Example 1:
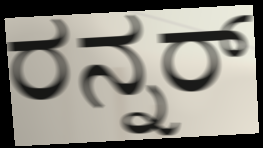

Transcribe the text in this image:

ರನ್ನರ್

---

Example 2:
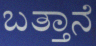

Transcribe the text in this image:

ಬತ್ತಾನೆ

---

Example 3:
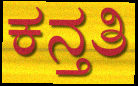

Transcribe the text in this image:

ಕನ್ತತಿ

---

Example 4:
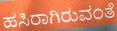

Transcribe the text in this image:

ಹಸಿರಾಗಿರುವಂತೆ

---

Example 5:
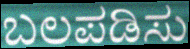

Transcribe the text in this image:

ಬಲಪಡಿಸು